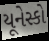
યૂનેસ્કો